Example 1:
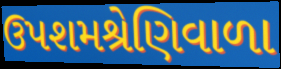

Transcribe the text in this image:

ઉપશમશ્રેણિવાળા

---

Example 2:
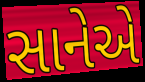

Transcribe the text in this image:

સાનેએ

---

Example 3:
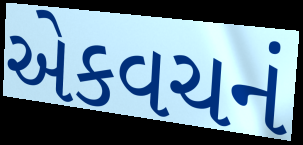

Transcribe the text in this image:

એકવચનં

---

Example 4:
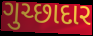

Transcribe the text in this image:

ગુચ્છાદાર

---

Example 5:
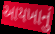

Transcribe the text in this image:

આયખાનું